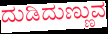
ದುಡಿದುಣ್ಣುವ